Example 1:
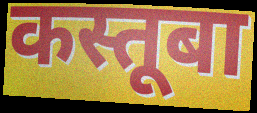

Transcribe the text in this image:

कस्तूबा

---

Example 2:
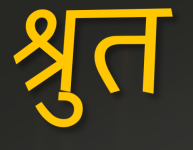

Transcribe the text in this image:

श्रुत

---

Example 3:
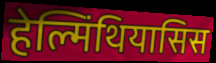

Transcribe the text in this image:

हेल्मिंथियासिस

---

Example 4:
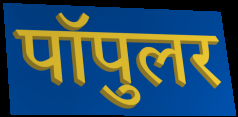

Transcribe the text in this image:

पॉपुलर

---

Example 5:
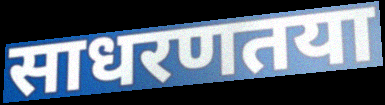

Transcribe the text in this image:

साधरणतया